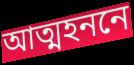
আত্মহননে